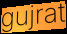
gujrat